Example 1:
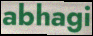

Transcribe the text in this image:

abhagi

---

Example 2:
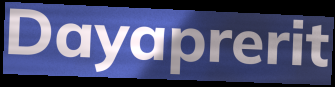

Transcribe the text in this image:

Dayaprerit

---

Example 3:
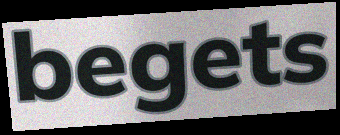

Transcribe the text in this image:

begets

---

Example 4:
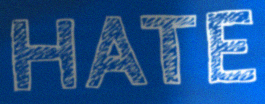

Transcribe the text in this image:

HATE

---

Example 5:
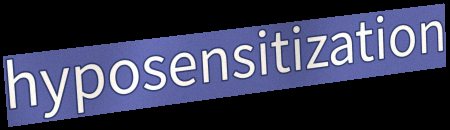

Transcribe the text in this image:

hyposensitization